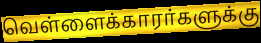
வெள்ளைக்காரர்களுக்கு